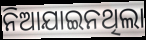
ନିଆଯାଇନଥିଲା